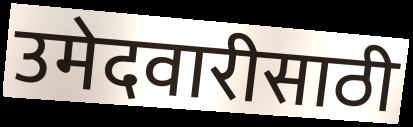
उमेदवारीसाठी